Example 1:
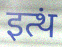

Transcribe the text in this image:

इत्थं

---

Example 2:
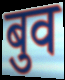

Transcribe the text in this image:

बुव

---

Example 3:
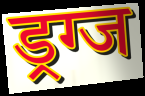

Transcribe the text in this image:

ड्रग्ज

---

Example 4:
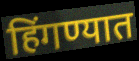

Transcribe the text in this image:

हिंगण्यात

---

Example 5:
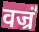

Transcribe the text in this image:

वज्रं॑